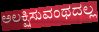
ಅಲಕ್ಷಿಸುವಂಥದಲ್ಲ